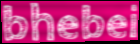
bhebei